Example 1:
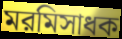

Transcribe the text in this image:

মরমিসাধক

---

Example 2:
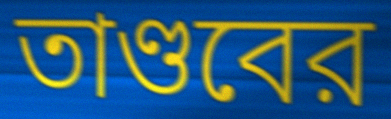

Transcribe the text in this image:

তাণ্ডবের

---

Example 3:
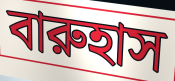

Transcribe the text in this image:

বারুহাস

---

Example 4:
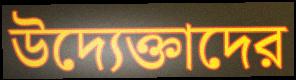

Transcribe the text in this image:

উদ্যেক্তাদের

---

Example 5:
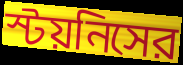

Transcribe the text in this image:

স্টয়নিসের